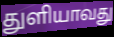
துளியாவது